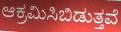
ಆಕ್ರಮಿಸಿಬಿಡುತ್ತವೆ